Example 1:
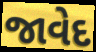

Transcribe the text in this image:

જાવેદ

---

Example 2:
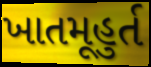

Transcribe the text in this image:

ખાતમૂહુર્ત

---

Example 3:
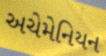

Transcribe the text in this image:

અચેમેનિયન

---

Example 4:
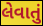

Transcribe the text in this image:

લેવાતું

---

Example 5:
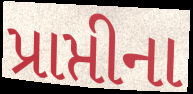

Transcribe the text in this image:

પ્રાપ્તીના